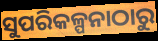
ସୁପରିକଳ୍ପନାଠାରୁ